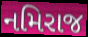
નમિરાજ